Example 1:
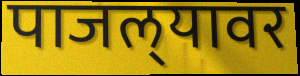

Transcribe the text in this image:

पाजल्यावर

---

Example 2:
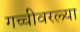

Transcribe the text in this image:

गच्चीवरल्या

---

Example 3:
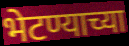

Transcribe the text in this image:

भेटण्याच्या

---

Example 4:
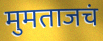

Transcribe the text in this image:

मुमताजचं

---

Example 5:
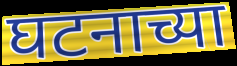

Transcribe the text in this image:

घटनाच्या